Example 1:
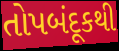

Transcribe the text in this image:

તોપબંદૂકથી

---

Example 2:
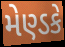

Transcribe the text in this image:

મેણ્ડકે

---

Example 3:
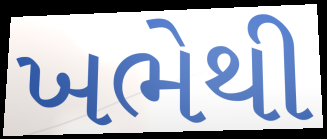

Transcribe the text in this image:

ખભેથી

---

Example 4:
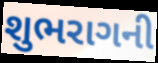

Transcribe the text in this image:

શુભરાગની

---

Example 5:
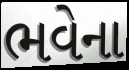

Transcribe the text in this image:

ભવેના